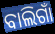
ବାଲିଗାଁ